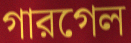
গারগেল